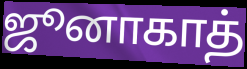
ஜூனாகாத்